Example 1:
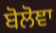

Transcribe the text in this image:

ਬੋਲੋਞਾ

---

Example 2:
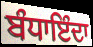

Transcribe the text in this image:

ਬੰਧਾਇੰਦਾ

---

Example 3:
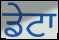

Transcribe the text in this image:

ਡੇਟਾ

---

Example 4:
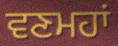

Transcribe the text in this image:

ਵਣਮਹਾਂ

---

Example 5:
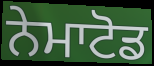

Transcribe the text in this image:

ਨੇਮਾਟੋਡ